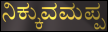
ನಿಕ್ಕುವಮಪ್ಪ